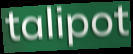
talipot